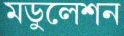
মডুলেশন